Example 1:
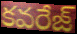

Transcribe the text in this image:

కవరేజ్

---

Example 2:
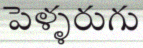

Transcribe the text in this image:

పెళ్ళరుగు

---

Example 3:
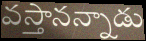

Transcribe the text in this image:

వస్తానన్నాడు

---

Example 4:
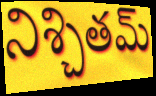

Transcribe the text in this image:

నిశ్చితమ్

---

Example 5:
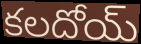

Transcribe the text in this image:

కలదోయ్